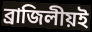
ব্রাজিলীয়ই